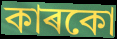
কাৰকো